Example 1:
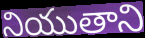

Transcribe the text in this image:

నియుతాని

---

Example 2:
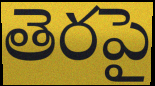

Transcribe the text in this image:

తెరపై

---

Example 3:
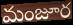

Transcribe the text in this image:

మంజూర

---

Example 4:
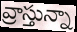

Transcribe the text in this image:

వ్రాస్తున్నా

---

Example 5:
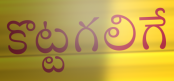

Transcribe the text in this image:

కొట్టగలిగే